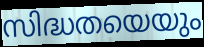
സിദ്ധതയെയും